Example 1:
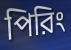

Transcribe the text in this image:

পিরিং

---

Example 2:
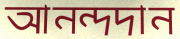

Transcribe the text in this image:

আনন্দদান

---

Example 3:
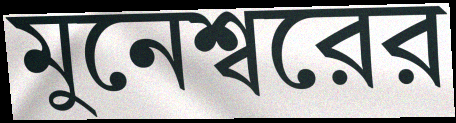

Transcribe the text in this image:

মুনেশ্বরের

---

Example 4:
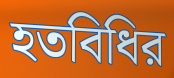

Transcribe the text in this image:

হতবিধির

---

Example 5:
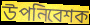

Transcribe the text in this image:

উপনিবেশক